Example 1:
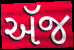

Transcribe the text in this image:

ઍજ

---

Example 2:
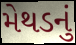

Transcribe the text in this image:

મેથડનું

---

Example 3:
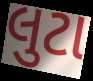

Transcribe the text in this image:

લુટા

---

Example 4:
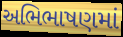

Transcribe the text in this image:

અભિભાષણમાં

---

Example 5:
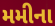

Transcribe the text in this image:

મમીના